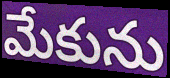
మేకును